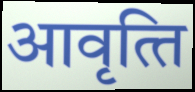
आवृत्‍ति